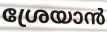
ശ്രേയാൻ